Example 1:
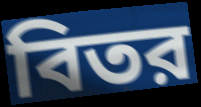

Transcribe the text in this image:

বিতর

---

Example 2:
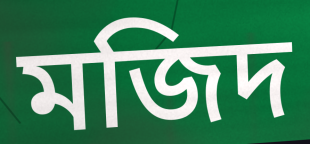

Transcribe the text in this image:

মজিদ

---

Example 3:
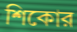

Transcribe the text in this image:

শিকোর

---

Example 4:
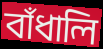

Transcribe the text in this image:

বাঁধালি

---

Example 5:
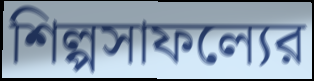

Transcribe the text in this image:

শিল্পসাফল্যের